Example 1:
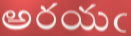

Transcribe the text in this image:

అరయఁ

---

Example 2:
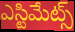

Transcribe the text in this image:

ఎస్టిమేట్స్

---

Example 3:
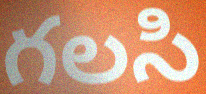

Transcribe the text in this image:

గలసి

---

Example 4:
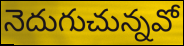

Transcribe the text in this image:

నెదుగుచున్నవో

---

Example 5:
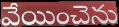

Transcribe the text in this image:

వేయించెను